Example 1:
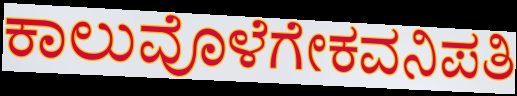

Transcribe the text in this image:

ಕಾಲುವೊಳೆಗೇಕವನಿಪತಿ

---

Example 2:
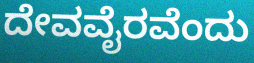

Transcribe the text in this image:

ದೇವವೈರವೆಂದು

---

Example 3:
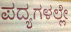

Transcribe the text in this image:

ಪದ್ಯಗಳಲ್ಲೇ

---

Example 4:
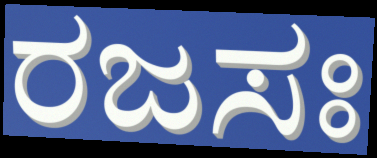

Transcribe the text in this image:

ರಜಸಃ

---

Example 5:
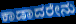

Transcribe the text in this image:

ಕಾಡಾದರೇನು